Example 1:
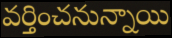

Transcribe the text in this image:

వర్తించనున్నాయి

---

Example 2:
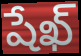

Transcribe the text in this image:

షేఖ్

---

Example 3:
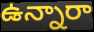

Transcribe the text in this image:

ఉన్నారా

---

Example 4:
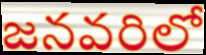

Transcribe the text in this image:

జనవరిలో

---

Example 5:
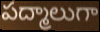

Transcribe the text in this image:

పద్మాలుగా